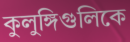
কুলুঙ্গিগুলিকে